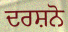
ਦਰਸ਼ਨੋ